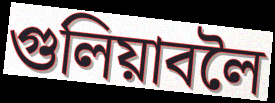
গুলিয়াবলৈ